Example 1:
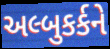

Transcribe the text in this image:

અલ્બુકર્કને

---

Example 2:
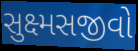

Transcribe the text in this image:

સુક્ષ્મસજીવો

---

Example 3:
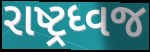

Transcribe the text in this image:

રાષ્ટ્રધ્વજ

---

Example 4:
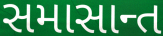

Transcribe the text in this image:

સમાસાન્ત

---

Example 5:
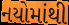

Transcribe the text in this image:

નયોમાંથી